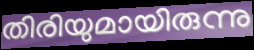
തിരിയുമായിരുന്നു